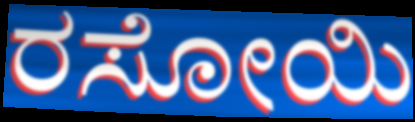
ರಸೋಯಿ